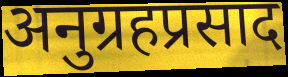
अनुग्रहप्रसाद